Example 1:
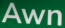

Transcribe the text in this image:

Awn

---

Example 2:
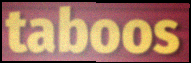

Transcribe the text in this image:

taboos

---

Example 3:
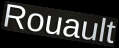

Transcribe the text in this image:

Rouault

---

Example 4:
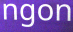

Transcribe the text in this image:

ngon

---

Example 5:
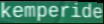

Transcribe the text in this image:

kemperide